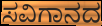
ಸವಿಗಾನದ